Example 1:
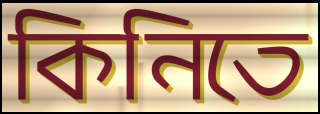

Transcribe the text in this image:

কিনিতে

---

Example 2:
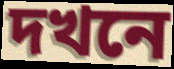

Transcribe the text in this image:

দখনে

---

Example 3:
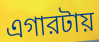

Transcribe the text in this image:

এগারটায়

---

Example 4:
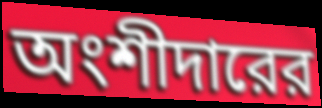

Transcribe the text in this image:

অংশীদারের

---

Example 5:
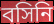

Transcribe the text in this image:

বসিনি